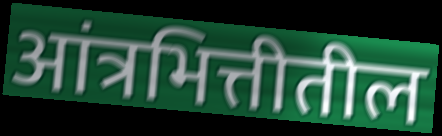
आंत्रभित्तीतील